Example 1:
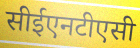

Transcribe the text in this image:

सीईएनटीएसी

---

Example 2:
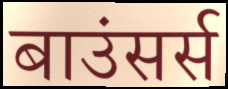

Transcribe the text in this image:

बाउंसर्स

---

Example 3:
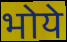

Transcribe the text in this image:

भोये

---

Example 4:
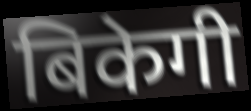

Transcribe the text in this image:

बिकेगी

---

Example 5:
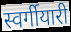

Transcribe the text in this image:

स्वर्गीयारी